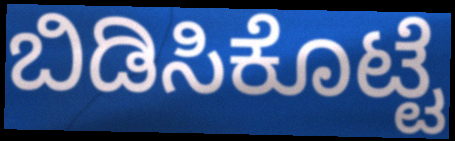
ಬಿಡಿಸಿಕೊಟ್ಟೆ